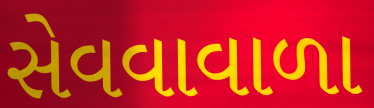
સેવવાવાળા